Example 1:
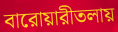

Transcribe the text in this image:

বারোয়ারীতলায়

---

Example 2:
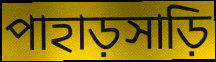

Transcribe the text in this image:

পাহাড়সাড়ি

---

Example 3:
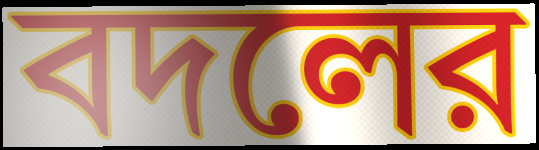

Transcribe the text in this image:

বদলের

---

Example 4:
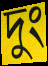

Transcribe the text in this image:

দুং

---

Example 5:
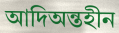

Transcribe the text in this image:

আদিঅন্তহীন